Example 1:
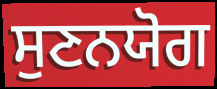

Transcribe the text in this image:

ਸੁਣਨਯੋਗ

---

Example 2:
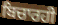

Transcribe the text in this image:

ਬਿਚਾਰਹੀ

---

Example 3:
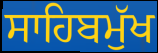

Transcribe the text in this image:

ਸਾਹਿਬਮੁੱਖ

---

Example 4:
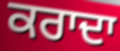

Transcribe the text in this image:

ਕਰਾਦਾ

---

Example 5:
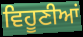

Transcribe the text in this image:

ਵਿਹੂਣੀਆਂ